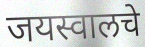
जयस्वालचे